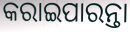
କରାଇପାରନ୍ତା